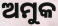
ଅମୁକ